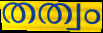
തത്വം